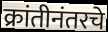
क्रांतीनंतरचे